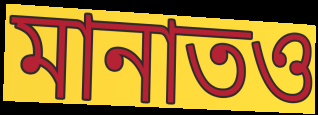
মানাতও